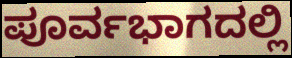
ಪೂರ್ವಭಾಗದಲ್ಲಿ